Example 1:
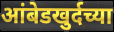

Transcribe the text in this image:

आंबेडखुर्दच्या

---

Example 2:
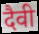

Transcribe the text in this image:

दैवी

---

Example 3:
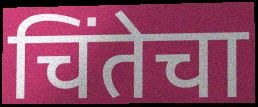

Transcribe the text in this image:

चिंतेचा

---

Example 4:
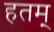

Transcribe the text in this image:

हतम्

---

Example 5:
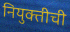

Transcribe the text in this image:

नियुक्तीची